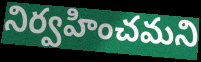
నిర్వహించమని